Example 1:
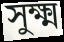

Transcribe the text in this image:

সুক্ষ্ম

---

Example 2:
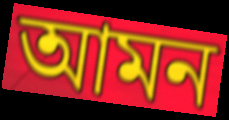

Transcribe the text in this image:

আমন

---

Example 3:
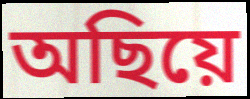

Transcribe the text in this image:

অছিয়ে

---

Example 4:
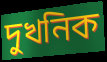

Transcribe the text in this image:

দুখনিক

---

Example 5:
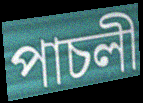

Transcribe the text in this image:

পাচলী